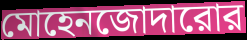
মোহেনজোদারোর